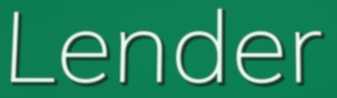
Lender